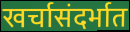
खर्चासंदर्भात